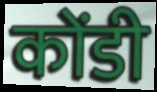
कोंडी